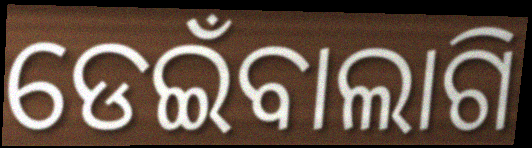
ଡେଇଁବାଲାଗି